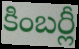
కింబర్లీ